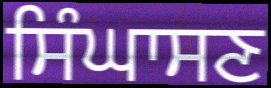
ਸਿੰਘਾਸਣ